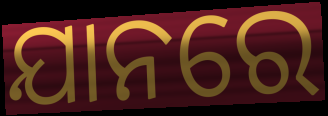
ଯାନରେ